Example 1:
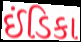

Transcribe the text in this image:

ઈંડિકા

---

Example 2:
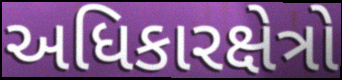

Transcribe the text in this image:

અધિકારક્ષેત્રો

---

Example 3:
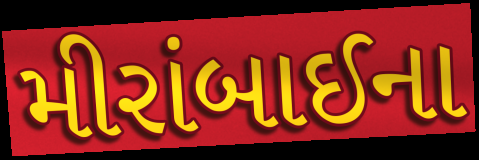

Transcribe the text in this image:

મીરાંબાઈના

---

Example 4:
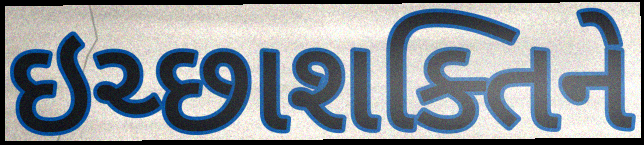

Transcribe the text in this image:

ઇચ્છાશક્તિને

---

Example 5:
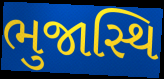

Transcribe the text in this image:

ભુજાસ્થિ